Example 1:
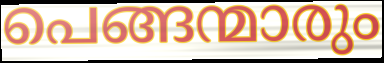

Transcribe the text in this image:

പെങ്ങന്മാരും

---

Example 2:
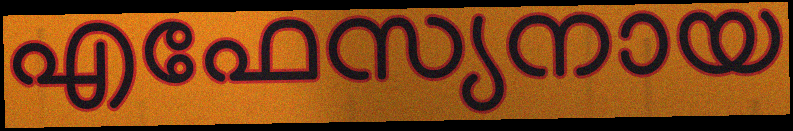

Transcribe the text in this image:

എഫേസ്യനായ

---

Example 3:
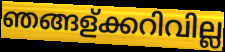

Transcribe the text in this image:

ഞങ്ങള്ക്കറിവില്ല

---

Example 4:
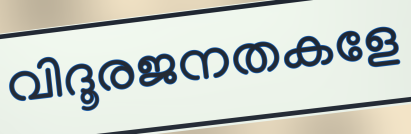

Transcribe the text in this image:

വിദൂരജനതകളേ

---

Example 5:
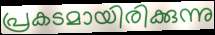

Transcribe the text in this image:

പ്രകടമായിരിക്കുന്നു